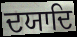
ਦਯਾਦਿ